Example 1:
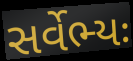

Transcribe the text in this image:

સર્વેભ્યઃ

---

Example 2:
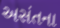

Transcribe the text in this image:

અસંતના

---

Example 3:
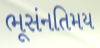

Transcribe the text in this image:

ભૂસંનતિમય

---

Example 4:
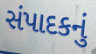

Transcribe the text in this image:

સંપાદકનું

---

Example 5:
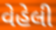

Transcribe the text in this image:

વેહેલી